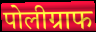
पोलीग्राफ